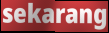
sekarang